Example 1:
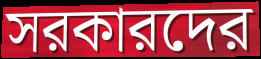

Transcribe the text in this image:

সরকারদের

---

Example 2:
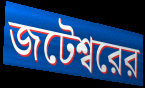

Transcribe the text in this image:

জটেশ্বরের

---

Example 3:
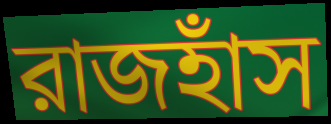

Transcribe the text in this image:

রাজহাঁস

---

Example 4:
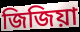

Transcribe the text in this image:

জিজিয়া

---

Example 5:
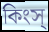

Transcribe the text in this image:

কিংস্